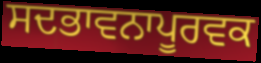
ਸਦਭਾਵਨਾਪੂਰਵਕ